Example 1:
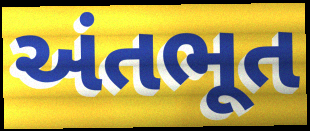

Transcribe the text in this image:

અંતભૂત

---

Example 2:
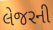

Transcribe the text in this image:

લેજરની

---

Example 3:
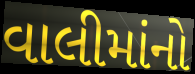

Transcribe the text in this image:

વાલીમાંનો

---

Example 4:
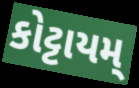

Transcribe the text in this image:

કોટ્ટાયમ્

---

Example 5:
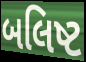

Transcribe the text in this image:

બલિષ્ટ